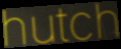
hutch